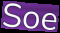
Soe